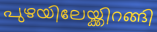
പുഴയിലേയ്ക്കിറങ്ങി